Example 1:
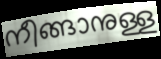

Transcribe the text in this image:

നീങ്ങാനുള്ള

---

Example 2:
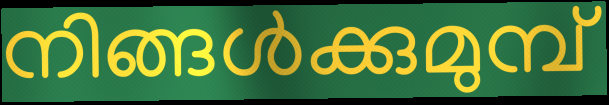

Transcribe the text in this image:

നിങ്ങൾക്കുമുമ്പ്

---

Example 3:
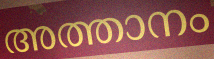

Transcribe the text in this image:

അത്താനം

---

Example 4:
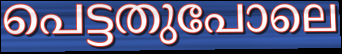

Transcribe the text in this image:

പെട്ടതുപോലെ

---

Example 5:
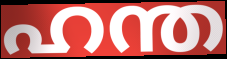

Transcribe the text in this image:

ഹന്ത